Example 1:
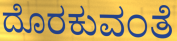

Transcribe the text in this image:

ದೊರಕುವಂತೆ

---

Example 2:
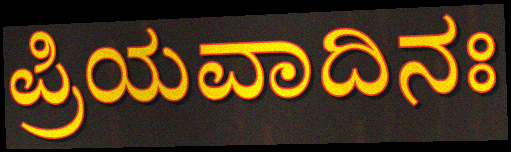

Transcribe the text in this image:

ಪ್ರಿಯವಾದಿನಃ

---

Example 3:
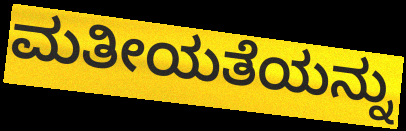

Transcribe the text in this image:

ಮತೀಯತೆಯನ್ನು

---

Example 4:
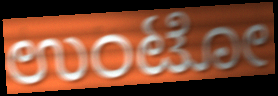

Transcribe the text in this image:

ಉಂಟೋ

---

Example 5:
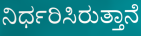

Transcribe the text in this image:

ನಿರ್ಧರಿಸಿರುತ್ತಾನೆ